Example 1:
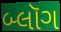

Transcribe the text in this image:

બ્લૉગ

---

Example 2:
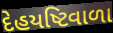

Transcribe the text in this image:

દેહયષ્ટિવાળા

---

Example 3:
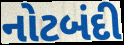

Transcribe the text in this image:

નોટબંદી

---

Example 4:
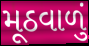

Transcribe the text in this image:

મૂઠવાળું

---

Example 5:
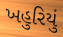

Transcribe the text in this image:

ખહુરિયું